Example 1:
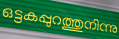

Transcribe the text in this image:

ഒട്ടകപ്പുറത്തുനിന്നു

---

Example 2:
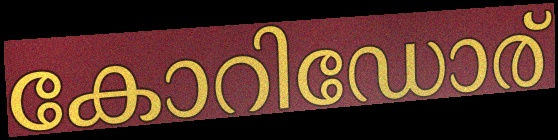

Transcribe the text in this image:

കോറിഡോര്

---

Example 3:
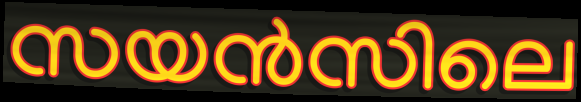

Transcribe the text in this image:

സയൻസിലെ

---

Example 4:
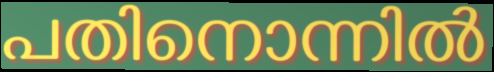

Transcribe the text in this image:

പതിനൊന്നിൽ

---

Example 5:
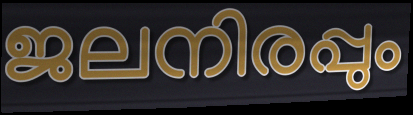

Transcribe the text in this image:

ജലനിരപ്പും